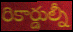
రికార్డుల్నీ